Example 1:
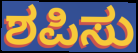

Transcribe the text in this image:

ಶಪಿಸು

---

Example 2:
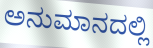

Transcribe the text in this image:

ಅನುಮಾನದಲ್ಲಿ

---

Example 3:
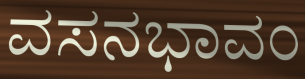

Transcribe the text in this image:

ವಸನಭಾವಂ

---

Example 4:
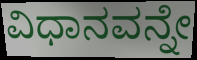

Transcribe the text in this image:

ವಿಧಾನವನ್ನೇ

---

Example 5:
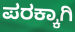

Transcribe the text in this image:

ಪರಕ್ಕಾಗಿ